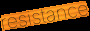
resistance